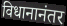
विधानानंतर